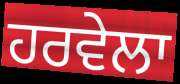
ਹਰਵੇਲਾ